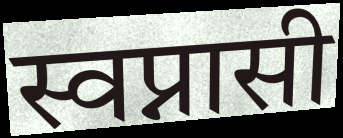
स्वप्नासी